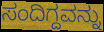
ಸಂದಿಗ್ದವನ್ನು